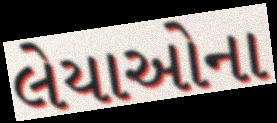
લેયાઓના